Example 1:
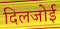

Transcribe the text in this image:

दिलजोई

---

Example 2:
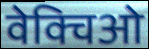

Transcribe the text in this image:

वेक्चिओ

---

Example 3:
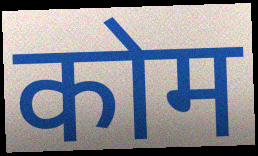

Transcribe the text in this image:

कोम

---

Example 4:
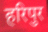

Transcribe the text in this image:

हरिपुर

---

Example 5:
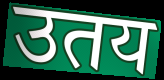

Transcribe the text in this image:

उतय